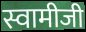
स्वामीजी